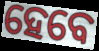
ହେବେ